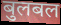
बुलबल